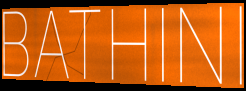
BATHINI